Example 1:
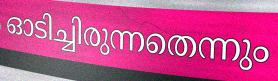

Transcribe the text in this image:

ഓടിച്ചിരുന്നതെന്നും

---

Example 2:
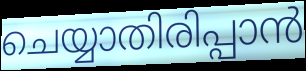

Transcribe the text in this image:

ചെയ്യാതിരിപ്പാൻ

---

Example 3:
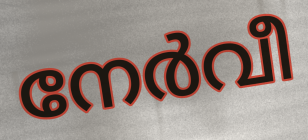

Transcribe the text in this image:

നേർവീ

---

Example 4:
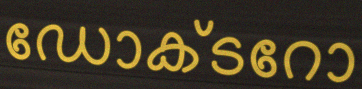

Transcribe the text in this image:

ഡോക്ടറോ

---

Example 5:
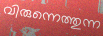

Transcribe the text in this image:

വിരുന്നെത്തുന്ന